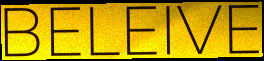
BELEIVE